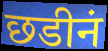
छडीनं